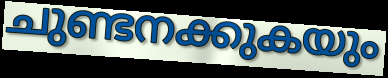
ചുണ്ടനക്കുകയും